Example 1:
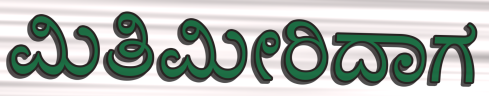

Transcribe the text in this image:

ಮಿತಿಮೀರಿದಾಗ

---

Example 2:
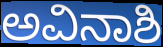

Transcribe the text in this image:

ಅವಿನಾಶಿ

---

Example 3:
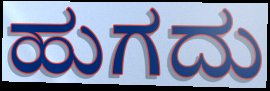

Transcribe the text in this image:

ಹುಗದು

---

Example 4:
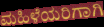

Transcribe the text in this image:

ಮಹಿಳೆಯರಿಗಾಗಿ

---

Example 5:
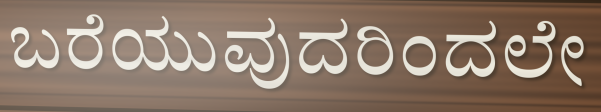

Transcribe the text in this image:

ಬರೆಯುವುದರಿಂದಲೇ